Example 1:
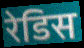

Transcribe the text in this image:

रेडिस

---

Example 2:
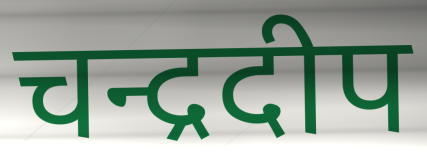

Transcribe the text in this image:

चन्द्रदीप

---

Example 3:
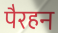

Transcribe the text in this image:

पैरहन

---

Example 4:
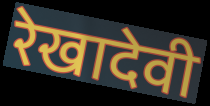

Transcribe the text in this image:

रेखादेवी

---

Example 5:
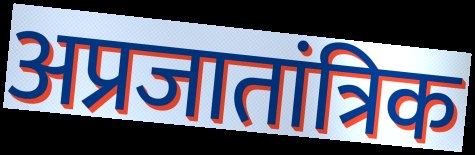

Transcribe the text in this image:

अप्रजातांत्रिक